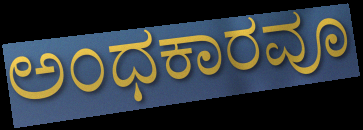
ಅಂಧಕಾರವೂ